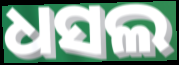
ଧସଲ